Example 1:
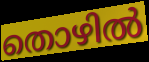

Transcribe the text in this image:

തൊഴിൽ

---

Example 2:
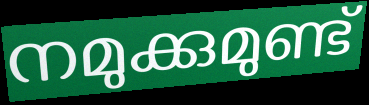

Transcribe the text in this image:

നമുക്കുമുണ്ട്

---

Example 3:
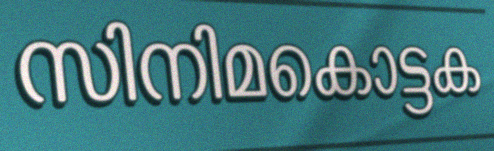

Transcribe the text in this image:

സിനിമകൊട്ടക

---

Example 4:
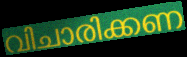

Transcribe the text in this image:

വിചാരിക്കണ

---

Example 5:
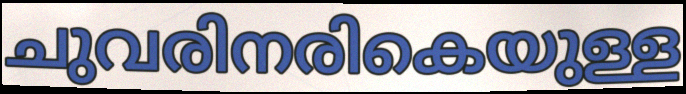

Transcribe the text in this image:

ചുവരിനരികെയുള്ള